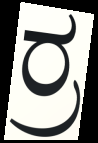
ರ್ರ